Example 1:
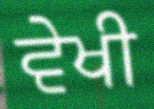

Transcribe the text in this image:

ਵੇਖੀ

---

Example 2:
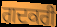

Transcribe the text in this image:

ਗਦਕਰੀ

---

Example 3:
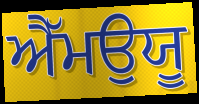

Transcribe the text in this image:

ਐੱਮਉਯੂ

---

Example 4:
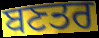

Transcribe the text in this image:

ਬਣਤਰ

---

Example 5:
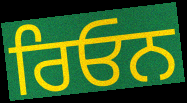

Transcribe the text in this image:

ਰਿਓਨ